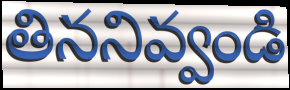
తిననివ్వండి